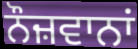
ਨੌਜ਼ਵਾਨਾਂ